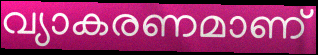
വ്യാകരണമാണ്